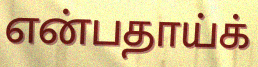
என்பதாய்க்